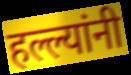
हल्ल्यांनी